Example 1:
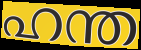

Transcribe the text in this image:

ഹന്ത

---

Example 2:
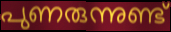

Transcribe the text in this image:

പുണരുന്നുണ്ട്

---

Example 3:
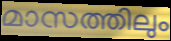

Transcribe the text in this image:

മാസത്തിലും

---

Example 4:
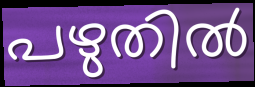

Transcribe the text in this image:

പഴുതിൽ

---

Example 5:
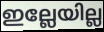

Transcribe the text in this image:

ഇല്ലേയില്ല